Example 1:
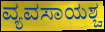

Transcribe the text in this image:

ವ್ಯವಸಾಯಶ್ಚ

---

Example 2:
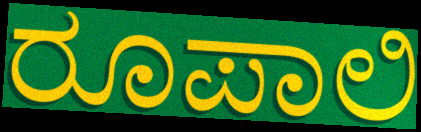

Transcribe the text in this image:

ರೂಪಾಲಿ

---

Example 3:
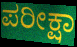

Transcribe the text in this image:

ಪರೀಕ್ಷಾ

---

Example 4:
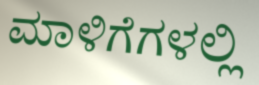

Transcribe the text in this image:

ಮಾಳಿಗೆಗಳಲ್ಲಿ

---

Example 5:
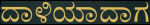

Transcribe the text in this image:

ದಾಳಿಯಾದಾಗ